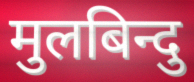
मुलबिन्दु